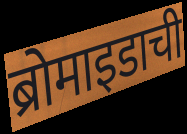
ब्रोमाइडाची